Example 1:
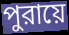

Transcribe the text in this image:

পুরায়ে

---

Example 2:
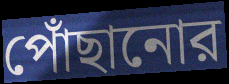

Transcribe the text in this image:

পোঁছানোর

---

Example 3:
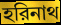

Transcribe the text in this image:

হরিনাথ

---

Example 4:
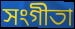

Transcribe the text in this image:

সংগীতা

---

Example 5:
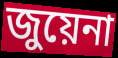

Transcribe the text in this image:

জুয়েনা